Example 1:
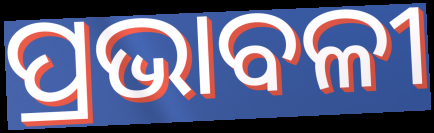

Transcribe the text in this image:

ପ୍ରଭାବଳୀ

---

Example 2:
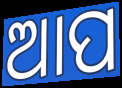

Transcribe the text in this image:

ଆପ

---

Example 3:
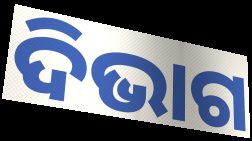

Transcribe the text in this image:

ଦିଭାଗ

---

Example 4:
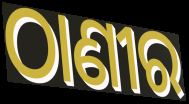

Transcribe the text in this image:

ଠାଣୀର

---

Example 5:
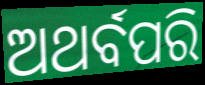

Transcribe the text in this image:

ଅଥର୍ବପରି